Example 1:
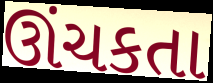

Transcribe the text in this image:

ઊંચકતા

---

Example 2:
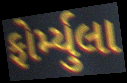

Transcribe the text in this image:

ફોર્મ્યુલા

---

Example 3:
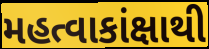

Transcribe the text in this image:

મહત્વાકાંક્ષાથી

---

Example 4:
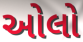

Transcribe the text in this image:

ઓલો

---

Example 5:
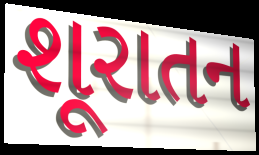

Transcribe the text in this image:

શૂરાતન